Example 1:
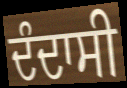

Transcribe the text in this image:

ਦੰਦਾਸੀ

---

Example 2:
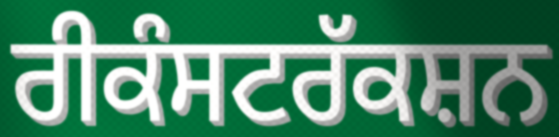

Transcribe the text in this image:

ਰੀਕੰਸਟਰੱਕਸ਼ਨ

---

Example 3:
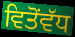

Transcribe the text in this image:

ਵਿਤੋਂਵੱਧ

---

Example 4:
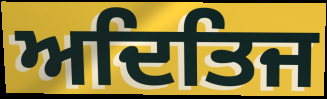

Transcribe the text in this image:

ਅਦਿਤਿਜ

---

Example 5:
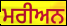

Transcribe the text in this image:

ਮਰੀਅਨ